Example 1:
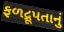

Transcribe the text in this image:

ફળદ્રૂપતાનું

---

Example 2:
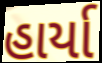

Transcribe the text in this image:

હાર્યા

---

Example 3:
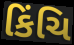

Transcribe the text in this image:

કિંચિ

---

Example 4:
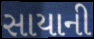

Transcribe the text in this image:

સાયાની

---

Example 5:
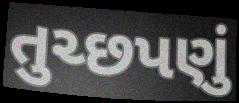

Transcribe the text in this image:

તુચ્છપણું